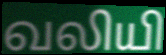
வலியி